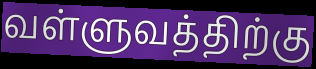
வள்ளுவத்திற்கு